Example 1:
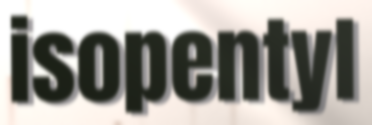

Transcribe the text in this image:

isopentyl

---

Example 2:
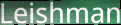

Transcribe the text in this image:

Leishman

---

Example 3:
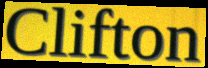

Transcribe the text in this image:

Clifton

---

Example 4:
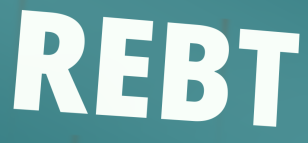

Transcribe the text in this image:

REBT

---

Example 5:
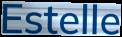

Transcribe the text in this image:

Estelle